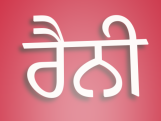
ਰੈਨੀ